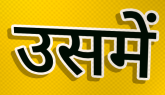
उसमें